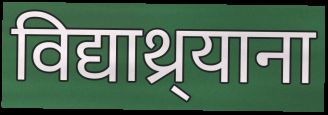
विद्याथ्र्याना